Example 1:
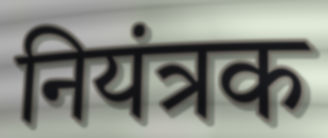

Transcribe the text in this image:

नियंत्रक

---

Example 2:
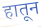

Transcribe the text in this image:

हातून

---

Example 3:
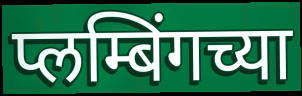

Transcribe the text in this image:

प्लम्बिंगच्या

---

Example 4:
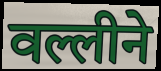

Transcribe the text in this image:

वल्लीने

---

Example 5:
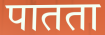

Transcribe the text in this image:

पातता